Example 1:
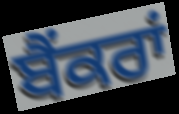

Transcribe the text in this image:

ਬੈਂਕਰਾਂ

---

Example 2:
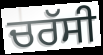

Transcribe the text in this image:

ਚਰੱਸੀ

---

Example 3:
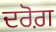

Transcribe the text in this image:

ਦਰੋਗ਼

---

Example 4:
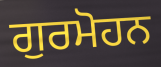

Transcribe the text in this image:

ਗੁਰਮੋਹਨ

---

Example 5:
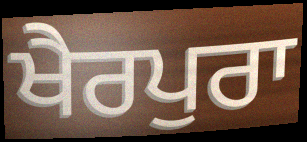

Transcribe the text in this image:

ਖੈਰਪੁਰਾ